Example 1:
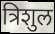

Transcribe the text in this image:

त्रिशुल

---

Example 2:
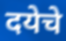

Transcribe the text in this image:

दयेचे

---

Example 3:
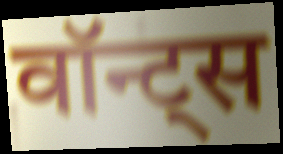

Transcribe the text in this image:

वॉन्ट्स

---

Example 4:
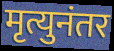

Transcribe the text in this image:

मृत्युनंतर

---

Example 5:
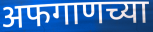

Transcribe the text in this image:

अफगाणच्या